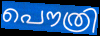
പൌത്രി